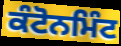
ਕੰਟੋਨਮਿੰਟ